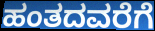
ಹಂತದವರೆಗೆ